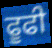
ਫੂਫੀ